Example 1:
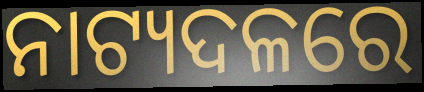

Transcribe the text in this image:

ନାଟ୍ୟଦଳରେ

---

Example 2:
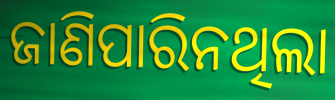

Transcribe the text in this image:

ଜାଣିପାରିନଥିଲା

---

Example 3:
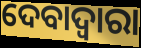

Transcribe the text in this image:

ଦେବାଦ୍ବାରା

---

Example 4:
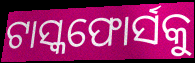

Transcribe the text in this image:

ଟାସ୍କଫୋର୍ସକୁ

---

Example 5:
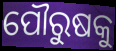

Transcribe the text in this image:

ପୌରୁଷକୁ